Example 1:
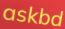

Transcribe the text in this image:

askbd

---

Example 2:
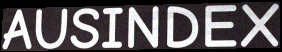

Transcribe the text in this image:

AUSINDEX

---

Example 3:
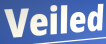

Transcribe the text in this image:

Veiled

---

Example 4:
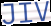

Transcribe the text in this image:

JIV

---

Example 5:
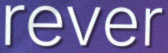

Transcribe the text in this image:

rever